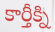
కార్తీక్ని